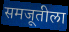
समजूतीला